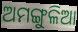
ଅମଙ୍ଗୁଳିଆ